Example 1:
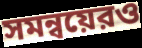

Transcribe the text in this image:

সমন্বয়েরও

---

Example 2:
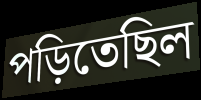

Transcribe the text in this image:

পড়িতেছিল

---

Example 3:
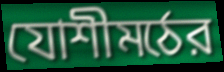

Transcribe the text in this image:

যোশীমঠের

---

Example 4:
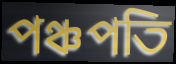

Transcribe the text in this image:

পঞ্চপতি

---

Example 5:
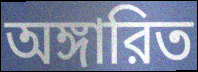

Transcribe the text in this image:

অঙ্গারিত